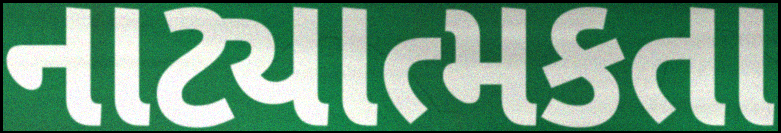
નાટ્યાત્મકતા